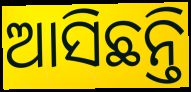
ଆସିଛନ୍ତି